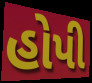
હોપી